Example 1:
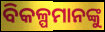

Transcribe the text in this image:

ବିକଳ୍ପମାନଙ୍କୁ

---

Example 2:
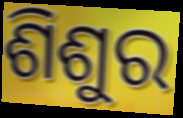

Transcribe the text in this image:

ଶିଶୁର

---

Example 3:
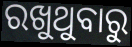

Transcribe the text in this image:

ରଖୁଥୁବାରୁ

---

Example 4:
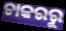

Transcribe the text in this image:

ଚାକରରୁ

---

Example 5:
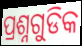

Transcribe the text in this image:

ପ୍ରଶ୍ନଗୁଡିକ